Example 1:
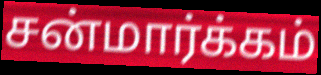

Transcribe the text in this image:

சன்மார்க்கம்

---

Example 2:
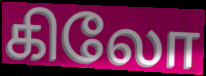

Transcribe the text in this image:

கிலோ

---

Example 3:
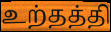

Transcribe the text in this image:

உற்தத்தி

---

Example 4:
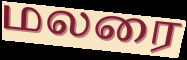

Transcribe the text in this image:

மலரை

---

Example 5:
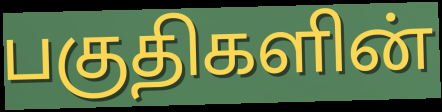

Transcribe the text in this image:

பகுதிகளின்